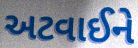
અટવાઈને